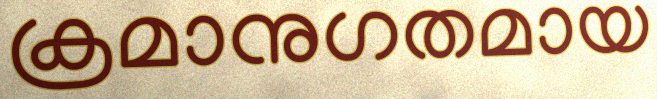
ക്രമാനുഗതമായ